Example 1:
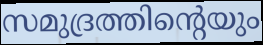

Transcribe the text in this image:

സമുദ്രത്തിന്റെയും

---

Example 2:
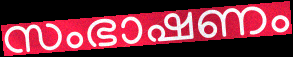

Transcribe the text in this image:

സംഭാഷണം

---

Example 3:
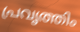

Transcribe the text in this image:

പ്രവൃത്തിം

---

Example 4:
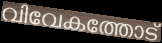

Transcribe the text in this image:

വിവേകത്തോട്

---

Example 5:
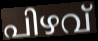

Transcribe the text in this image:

പിഴവ്